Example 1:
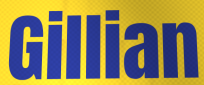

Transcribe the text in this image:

Gillian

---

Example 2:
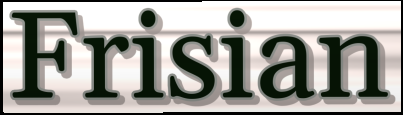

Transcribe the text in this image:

Frisian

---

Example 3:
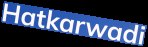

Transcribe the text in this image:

Hatkarwadi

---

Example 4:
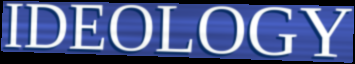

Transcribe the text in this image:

IDEOLOGY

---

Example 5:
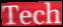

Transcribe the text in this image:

Tech